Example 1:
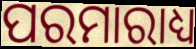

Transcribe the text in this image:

ପରମାରାଧ୍ୟ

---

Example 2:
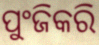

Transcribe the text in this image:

ପୁଂଜିକରି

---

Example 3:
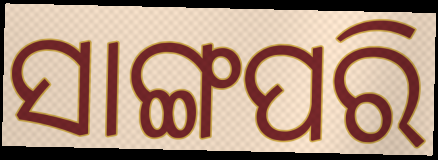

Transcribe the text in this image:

ସାଙ୍ଗପରି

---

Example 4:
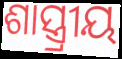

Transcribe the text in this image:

ଶାସ୍ତ୍ର୍ରୀୟ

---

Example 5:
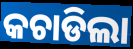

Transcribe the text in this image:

କଚାଡିଲା